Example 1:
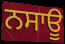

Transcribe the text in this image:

ਨਸਾਊ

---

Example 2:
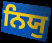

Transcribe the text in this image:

ਨਿਯੁ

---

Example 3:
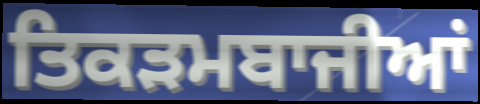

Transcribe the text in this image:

ਤਿਕੜਮਬਾਜੀਆਂ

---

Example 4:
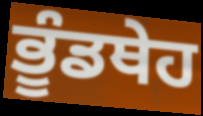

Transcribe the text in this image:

ਭੂੰਡਥੇਹ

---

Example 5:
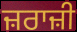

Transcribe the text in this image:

ਜ਼ਰਾਜ਼ੀ